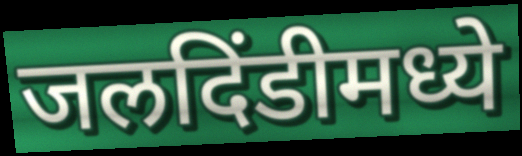
जलदिंडीमध्ये